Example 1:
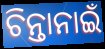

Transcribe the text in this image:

ଚିନ୍ତାନାଇଁ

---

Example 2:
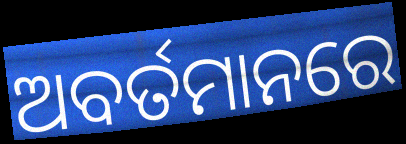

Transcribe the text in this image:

ଅବର୍ତମାନରେ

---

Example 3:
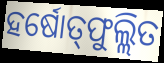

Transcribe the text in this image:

ହର୍ଷୋତ୍‌ଫୁଲ୍ଲିତ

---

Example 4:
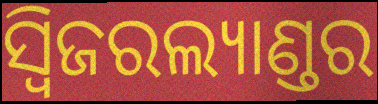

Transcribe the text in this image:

ସ୍ୱିଜରଲ୍ୟାଣ୍ଡର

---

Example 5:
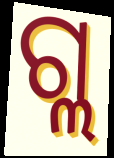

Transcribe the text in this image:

ଗ୍ଲ